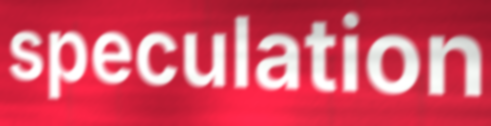
speculation